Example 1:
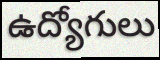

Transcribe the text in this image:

ఉద్యోగులు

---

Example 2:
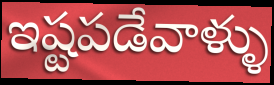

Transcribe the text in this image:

ఇష్టపడేవాళ్ళు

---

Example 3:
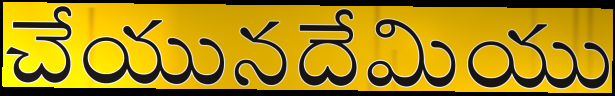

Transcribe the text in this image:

చేయునదేమియు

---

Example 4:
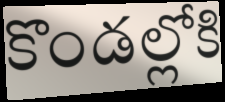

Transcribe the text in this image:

కొండల్లోకి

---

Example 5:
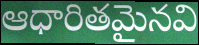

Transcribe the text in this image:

ఆధారితమైనవి